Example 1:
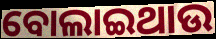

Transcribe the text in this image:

ବୋଲାଇଥାଉ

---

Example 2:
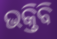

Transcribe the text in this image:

ଭକ୍ତିବି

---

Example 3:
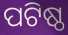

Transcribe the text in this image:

ପଟିଷ୍ଠ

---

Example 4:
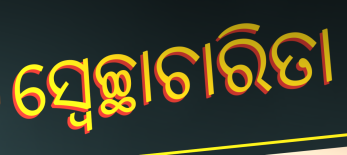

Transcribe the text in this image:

ସ୍ୱେଚ୍ଛାଚାରିତା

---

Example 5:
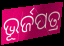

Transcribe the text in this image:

ଭୂର୍ଜପତ୍ର